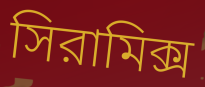
সিরামিক্স